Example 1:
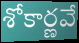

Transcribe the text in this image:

శోకార్ణవే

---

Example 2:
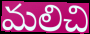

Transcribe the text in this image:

మలిచి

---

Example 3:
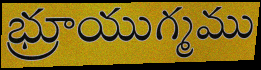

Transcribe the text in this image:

భ్రూయుగ్మము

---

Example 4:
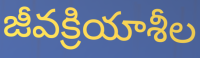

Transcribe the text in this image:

జీవక్రియాశీల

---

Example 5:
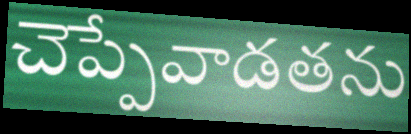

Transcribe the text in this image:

చెప్పేవాడతను